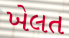
ખેલત